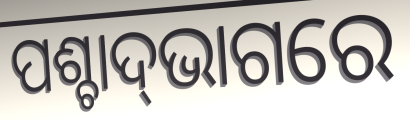
ପଶ୍ଚାଦ୍‌ଭାଗରେ